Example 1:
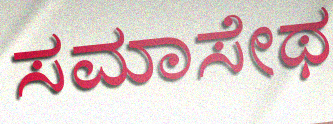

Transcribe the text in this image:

ಸಮಾಸೇಥ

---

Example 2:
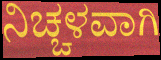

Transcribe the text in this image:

ನಿಚ್ಚಳವಾಗಿ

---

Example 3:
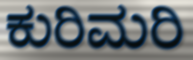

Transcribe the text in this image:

ಕುರಿಮರಿ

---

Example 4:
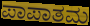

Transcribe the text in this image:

ಪಾಪಾತಮ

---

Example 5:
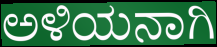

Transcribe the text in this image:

ಅಳಿಯನಾಗಿ